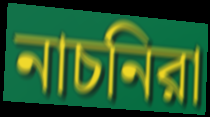
নাচনিরা